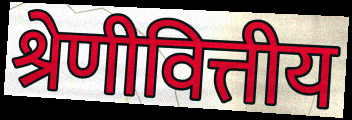
श्रेणीवित्तीय